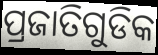
ପ୍ରଜାତିଗୁଡିକ